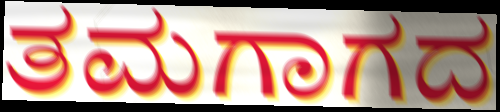
ತಮಗಾಗದ